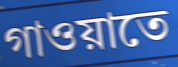
গাওয়াতে